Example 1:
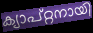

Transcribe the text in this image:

ക്യാപ്റ്റനായി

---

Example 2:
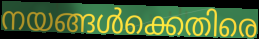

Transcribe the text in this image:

നയങ്ങൾക്കെതിരെ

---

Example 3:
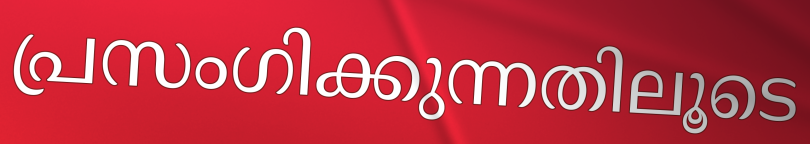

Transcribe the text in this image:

പ്രസംഗിക്കുന്നതിലൂടെ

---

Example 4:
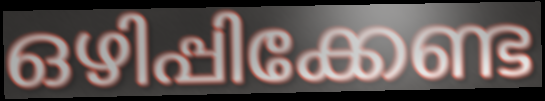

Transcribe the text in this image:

ഒഴിപ്പിക്കേണ്ട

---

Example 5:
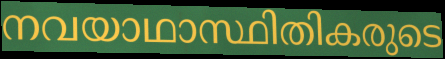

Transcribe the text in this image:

നവയാഥാസ്ഥിതികരുടെ